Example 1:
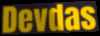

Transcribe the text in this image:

Devdas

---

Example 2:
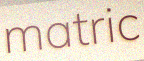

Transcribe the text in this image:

matric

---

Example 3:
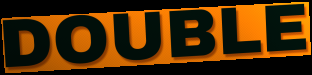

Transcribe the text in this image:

DOUBLE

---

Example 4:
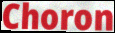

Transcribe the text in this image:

Choron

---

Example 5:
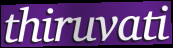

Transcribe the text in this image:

thiruvati